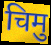
चिमु